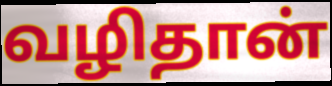
வழிதான்